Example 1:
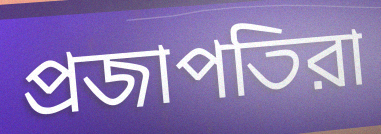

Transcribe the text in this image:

প্রজাপতিরা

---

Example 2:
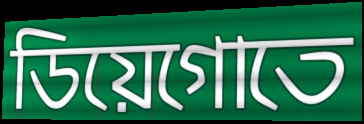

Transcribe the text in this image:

ডিয়েগোতে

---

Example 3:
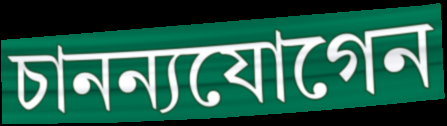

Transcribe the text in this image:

চানন্যযোগেন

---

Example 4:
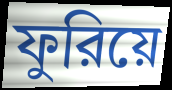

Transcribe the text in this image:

ফুরিয়ে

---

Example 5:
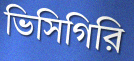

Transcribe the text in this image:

ভিসিগিরি